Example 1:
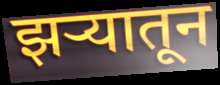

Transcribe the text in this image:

झऱ्यातून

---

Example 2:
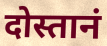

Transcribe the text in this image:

दोस्तानं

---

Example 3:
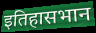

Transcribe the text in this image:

इतिहासभान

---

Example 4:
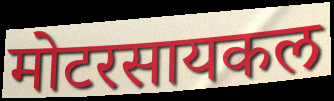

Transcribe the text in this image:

मोटरसायकल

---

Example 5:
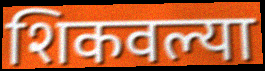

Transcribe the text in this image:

शिकवल्या